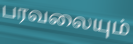
பரவலையும்